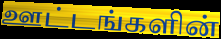
ஊட்டங்களின்